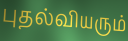
புதல்வியரும்